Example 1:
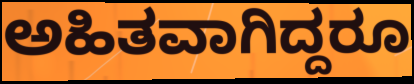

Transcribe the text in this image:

ಅಹಿತವಾಗಿದ್ದರೂ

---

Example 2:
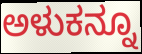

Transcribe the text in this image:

ಅಳುಕನ್ನೂ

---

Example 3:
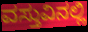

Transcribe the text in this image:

ವಸ್ತುವಿನಲ್ಲಿ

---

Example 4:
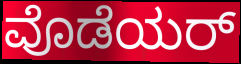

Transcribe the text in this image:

ವೊಡೆಯರ್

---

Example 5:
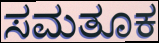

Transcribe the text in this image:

ಸಮತೂಕ